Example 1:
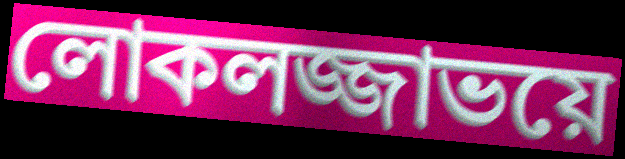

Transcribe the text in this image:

লোকলজ্জাভয়ে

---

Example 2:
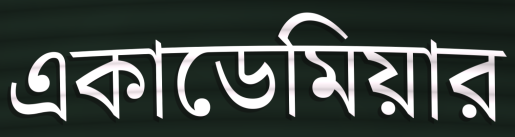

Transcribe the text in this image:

একাডেমিয়ার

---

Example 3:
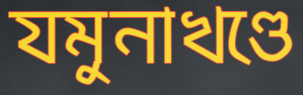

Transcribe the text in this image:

যমুনাখণ্ডে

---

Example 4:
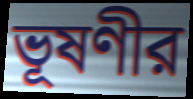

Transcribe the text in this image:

ভূষণীর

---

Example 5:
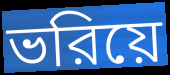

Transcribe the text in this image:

ভরিয়ে